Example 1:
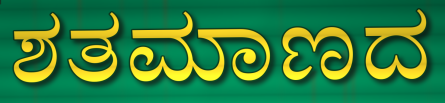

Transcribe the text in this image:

ಶತಮಾಣದ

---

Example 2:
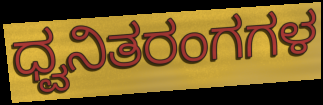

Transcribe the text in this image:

ಧ್ವನಿತರಂಗಗಳ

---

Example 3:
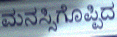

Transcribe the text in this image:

ಮನಸ್ಸಿಗೊಪ್ಪಿದ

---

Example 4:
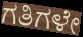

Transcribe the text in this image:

ಗತಿಗಳೇ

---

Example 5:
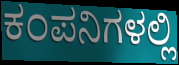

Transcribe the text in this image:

ಕಂಪನಿಗಳಲ್ಲಿ